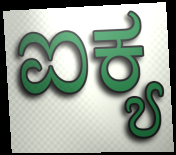
ಐಕ್ಯ